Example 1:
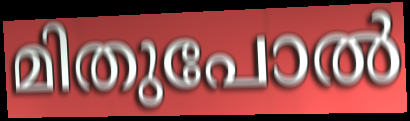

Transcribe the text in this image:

മിതുപോൽ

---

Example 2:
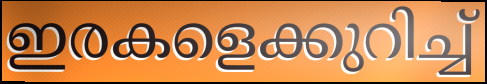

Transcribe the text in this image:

ഇരകളെക്കുറിച്ച്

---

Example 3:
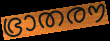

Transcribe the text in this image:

ഭ്രാതരൗ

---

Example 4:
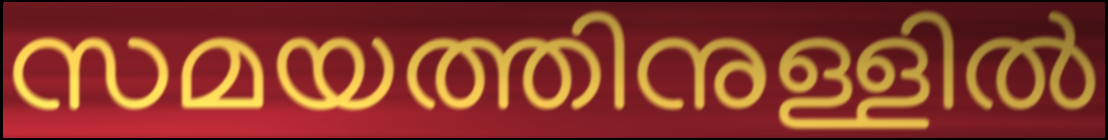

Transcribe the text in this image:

സമയത്തിനുള്ളിൽ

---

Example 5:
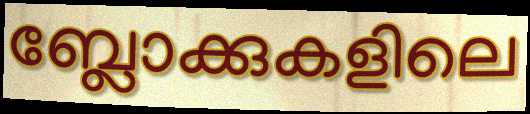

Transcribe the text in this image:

ബ്ലോക്കുകളിലെ